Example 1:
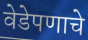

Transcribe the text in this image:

वेडेपणाचे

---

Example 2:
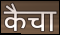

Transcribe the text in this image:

कैचा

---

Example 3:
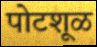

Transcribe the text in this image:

पोटशूळ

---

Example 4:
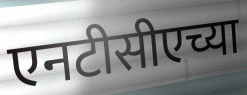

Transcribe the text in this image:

एनटीसीएच्या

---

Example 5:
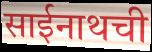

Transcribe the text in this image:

साईनाथची